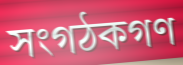
সংগঠকগণ